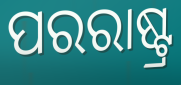
ପରରାଷ୍ଟ୍ର